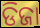
ଡିଜା